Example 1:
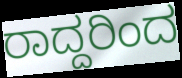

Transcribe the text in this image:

ರಾದ್ದರಿಂದ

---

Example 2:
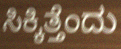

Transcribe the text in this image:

ಸಿಕ್ಕಿತ್ತೆಂದು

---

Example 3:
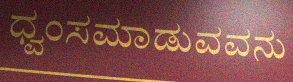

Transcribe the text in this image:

ಧ್ವಂಸಮಾಡುವವನು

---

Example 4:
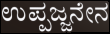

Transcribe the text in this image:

ಉಪ್ಪಜ್ಜನೇನ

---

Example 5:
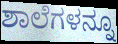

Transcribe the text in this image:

ಶಾಲೆಗಳನ್ನೂ